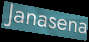
Janasena